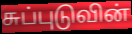
சுப்புடுவின்